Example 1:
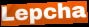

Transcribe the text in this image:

Lepcha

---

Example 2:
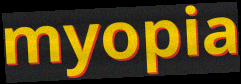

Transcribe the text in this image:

myopia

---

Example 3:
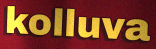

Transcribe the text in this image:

kolluva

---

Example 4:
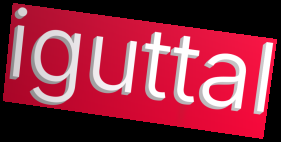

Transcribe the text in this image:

iguttal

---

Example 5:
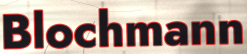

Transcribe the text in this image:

Blochmann